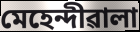
মেহেন্দীৱালা